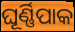
ଘୂର୍ଣ୍ଣିପାକ